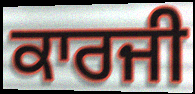
ਕਾਰਜੀ